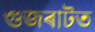
গুজৰাটত